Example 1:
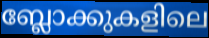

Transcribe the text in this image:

ബ്ലോക്കുകളിലെ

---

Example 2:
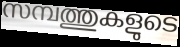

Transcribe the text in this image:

സമ്പത്തുകളുടെ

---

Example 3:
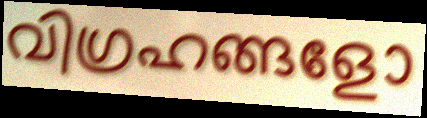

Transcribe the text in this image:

വിഗ്രഹങ്ങളോ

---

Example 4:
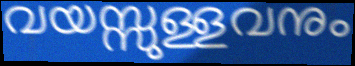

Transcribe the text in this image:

വയസ്സുള്ളവനും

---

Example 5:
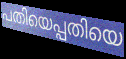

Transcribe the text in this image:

പതിയെപ്പതിയെ